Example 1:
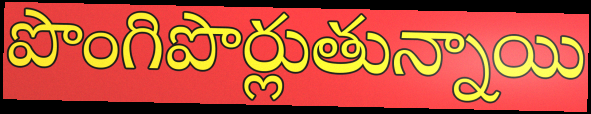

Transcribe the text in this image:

పొంగిపొర్లుతున్నాయి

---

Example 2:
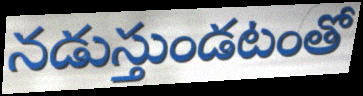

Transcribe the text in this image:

నడుస్తుండటంతో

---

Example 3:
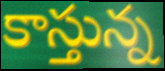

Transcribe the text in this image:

కాస్తున్న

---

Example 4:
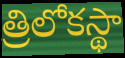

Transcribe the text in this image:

త్రిలోకస్థా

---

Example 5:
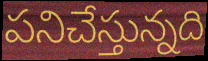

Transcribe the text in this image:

పనిచేస్తున్నది